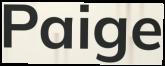
Paige